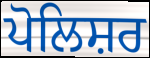
ਪੋਲਿਸ਼ਰ